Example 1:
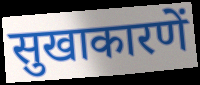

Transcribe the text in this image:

सुखाकारणें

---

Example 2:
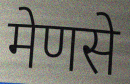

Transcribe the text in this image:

मेणसे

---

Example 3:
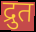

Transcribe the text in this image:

द्रुत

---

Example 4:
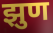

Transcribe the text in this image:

झुण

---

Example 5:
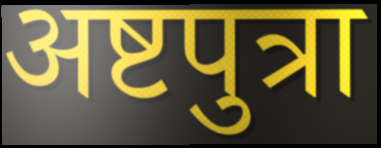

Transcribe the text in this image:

अष्टपुत्रा